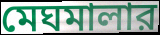
মেঘমালার